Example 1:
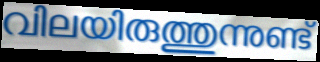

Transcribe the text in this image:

വിലയിരുത്തുന്നുണ്ട്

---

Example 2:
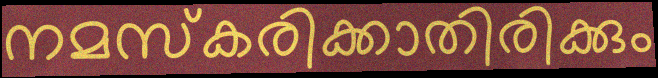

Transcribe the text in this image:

നമസ്കരിക്കാതിരിക്കും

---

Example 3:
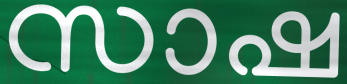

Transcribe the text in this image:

സാഷ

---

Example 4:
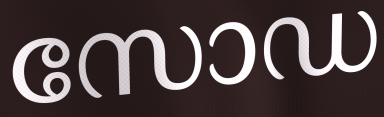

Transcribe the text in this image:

സോഡ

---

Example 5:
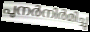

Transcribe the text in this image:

പുനർനിർമിച്ചു